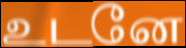
உடனே